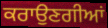
ਕਰਾਉਣਗੀਆਂ